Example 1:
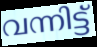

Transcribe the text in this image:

വന്നിട്ട്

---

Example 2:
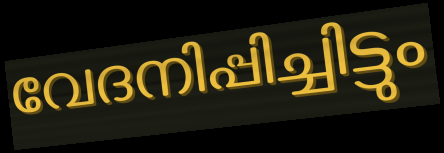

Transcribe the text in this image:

വേദനിപ്പിച്ചിട്ടും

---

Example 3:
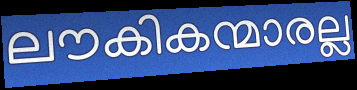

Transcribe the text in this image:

ലൗകികന്മാരല്ല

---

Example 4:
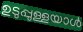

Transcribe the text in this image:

ഉടുപ്പുള്ളയാൾ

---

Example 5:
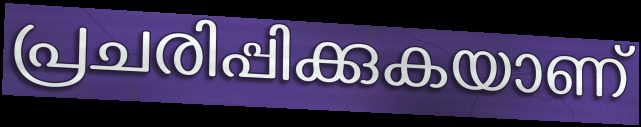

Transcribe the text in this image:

പ്രചരിപ്പിക്കുകയാണ്